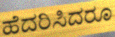
ಹೆದರಿಸಿದರೂ